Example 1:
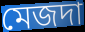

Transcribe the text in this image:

মেজদা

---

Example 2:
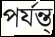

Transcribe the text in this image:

পর্যন্ত্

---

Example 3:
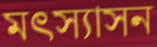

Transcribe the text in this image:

মৎস্যাসন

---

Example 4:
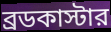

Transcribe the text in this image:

ব্রডকাস্টার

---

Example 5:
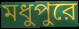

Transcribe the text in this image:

মধুপুরে